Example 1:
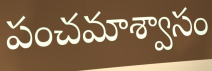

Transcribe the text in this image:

పంచమాశ్వాసం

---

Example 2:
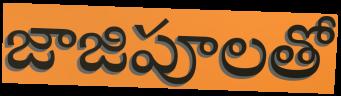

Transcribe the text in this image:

జాజిపూలతో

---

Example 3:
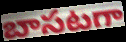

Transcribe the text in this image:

బాసటగా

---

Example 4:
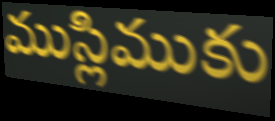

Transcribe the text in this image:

ముస్లిముకు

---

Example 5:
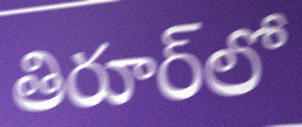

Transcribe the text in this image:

తిరూర్‌లో